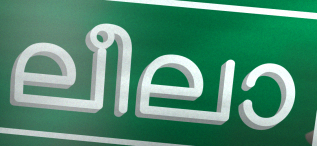
ലീലാ